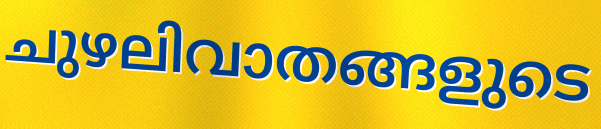
ചുഴലിവാതങ്ങളുടെ